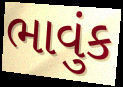
ભાવુંક